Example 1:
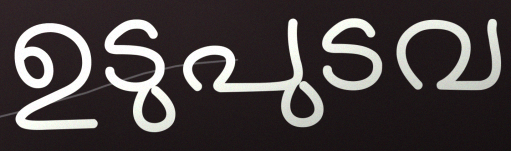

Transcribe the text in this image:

ഉടുപുടവ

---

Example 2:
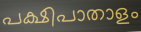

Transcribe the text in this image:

പക്ഷിപാതാളം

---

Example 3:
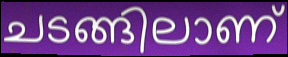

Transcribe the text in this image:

ചടങ്ങിലാണ്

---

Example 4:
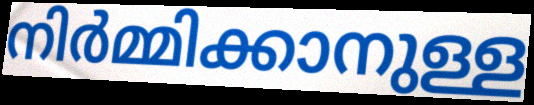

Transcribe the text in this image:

നിർമ്മിക്കാനുള്ള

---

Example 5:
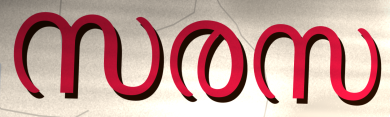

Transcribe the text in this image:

സരസ